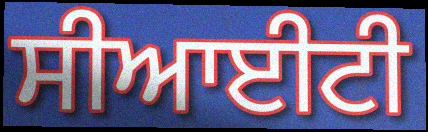
ਸੀਆਈਟੀ